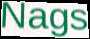
Nags